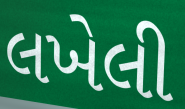
લખેલી